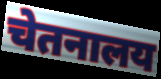
चेतनालय